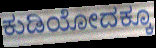
ಕುಡಿಯೋದಕ್ಕೂ